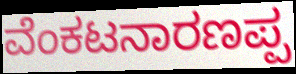
ವೆಂಕಟನಾರಣಪ್ಪ